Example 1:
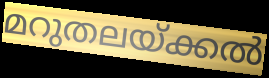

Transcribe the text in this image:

മറുതലയ്ക്കൽ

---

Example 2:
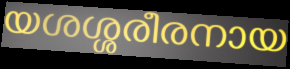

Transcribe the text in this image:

യശശ്ശരീരനായ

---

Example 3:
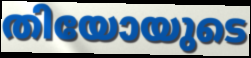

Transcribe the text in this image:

തിയോയുടെ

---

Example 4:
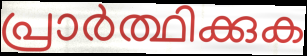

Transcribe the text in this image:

പ്രാർത്ഥിക്കുക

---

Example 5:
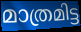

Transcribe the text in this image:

മാത്രമിട്ട